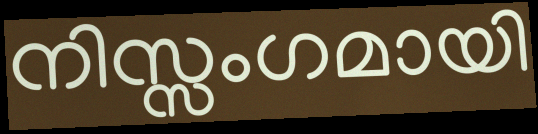
നിസ്സംഗമായി